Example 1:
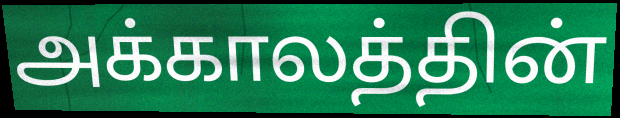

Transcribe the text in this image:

அக்காலத்தின்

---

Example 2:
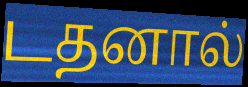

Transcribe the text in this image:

டதனால்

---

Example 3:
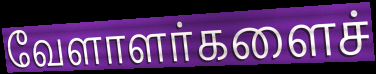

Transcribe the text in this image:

வேளாளர்களைச்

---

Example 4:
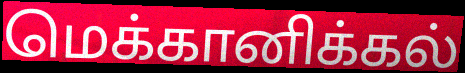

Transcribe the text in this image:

மெக்கானிக்கல்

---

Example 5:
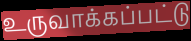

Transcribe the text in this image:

உருவாக்கப்பட்டு